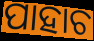
ପାହାଚ